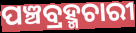
ପଞ୍ଚବ୍ରହ୍ମଚାରୀ